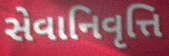
સેવાનિવૃત્તિ